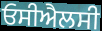
ਓਸੀਐਲਸੀ